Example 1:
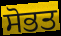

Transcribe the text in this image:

ਸੋਭਤ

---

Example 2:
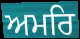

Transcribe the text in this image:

ਅਮਰਿ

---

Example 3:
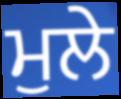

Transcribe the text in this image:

ਮੁਲੇ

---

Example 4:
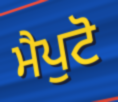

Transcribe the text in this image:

ਮੈਪੁਟੋ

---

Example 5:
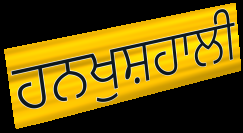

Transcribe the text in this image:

ਹਨਖੁਸ਼ਹਾਲੀ